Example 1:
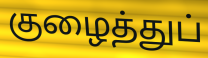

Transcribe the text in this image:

குழைத்துப்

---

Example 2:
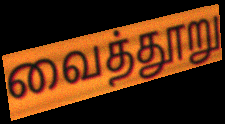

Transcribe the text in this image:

வைத்தூறு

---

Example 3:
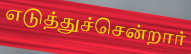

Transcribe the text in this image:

எடுத்துச்சென்றார்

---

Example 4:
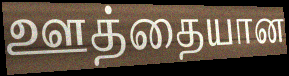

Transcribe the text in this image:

ஊத்தையான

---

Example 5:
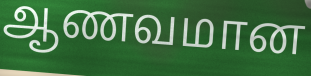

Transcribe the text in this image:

ஆணவமான